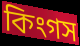
কিংগস